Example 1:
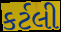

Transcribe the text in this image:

કર્ટલી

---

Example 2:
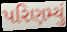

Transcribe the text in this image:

પરિણમ્યું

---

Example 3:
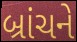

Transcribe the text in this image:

બ્રાંચને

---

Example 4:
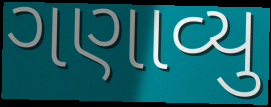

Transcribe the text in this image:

ગણાવ્યુ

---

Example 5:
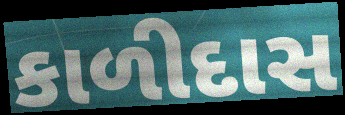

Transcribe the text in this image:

કાળીદાસ